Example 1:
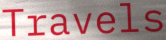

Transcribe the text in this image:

Travels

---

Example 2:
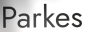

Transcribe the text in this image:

Parkes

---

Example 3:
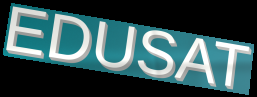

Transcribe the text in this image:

EDUSAT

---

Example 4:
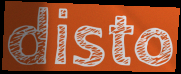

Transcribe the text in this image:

disto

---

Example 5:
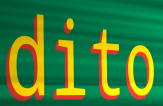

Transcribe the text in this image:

dito